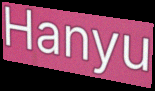
Hanyu